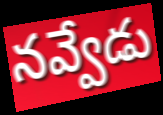
నవ్వేడు